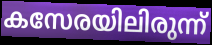
കസേരയിലിരുന്ന്